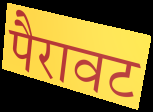
पैरावट